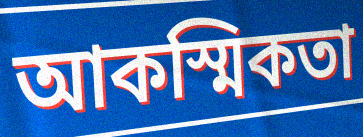
আকস্মিকতা